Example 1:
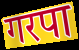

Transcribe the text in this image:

गरपा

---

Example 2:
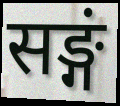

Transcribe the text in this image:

सङ्गं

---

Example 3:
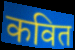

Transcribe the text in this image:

कवित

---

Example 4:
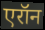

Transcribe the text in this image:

एरॉन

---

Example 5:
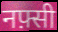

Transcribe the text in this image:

नफ़्सी